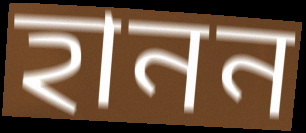
হানন